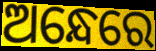
ଅନ୍ଧେରେ